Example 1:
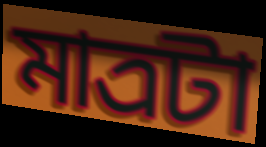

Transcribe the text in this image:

মাত্রটা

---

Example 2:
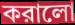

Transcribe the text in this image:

করালো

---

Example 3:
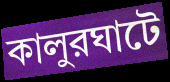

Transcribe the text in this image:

কালুরঘাটে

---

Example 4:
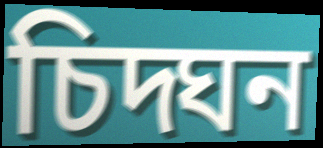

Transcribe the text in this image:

চিদ্ঘন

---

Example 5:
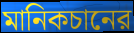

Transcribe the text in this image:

মানিকচানের